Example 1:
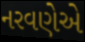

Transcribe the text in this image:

નરવણેએ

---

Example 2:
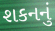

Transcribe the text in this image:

શકનનું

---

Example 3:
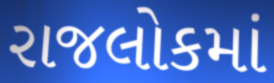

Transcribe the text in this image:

રાજલોકમાં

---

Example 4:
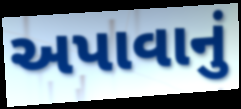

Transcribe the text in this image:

અપાવાનું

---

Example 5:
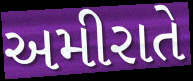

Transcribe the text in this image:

અમીરાતે